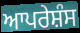
ਆਪਰੇਸ਼ੰਸ